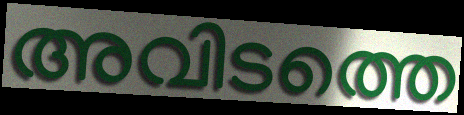
അവിടത്തെ